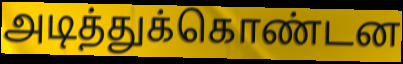
அடித்துக்கொண்டன